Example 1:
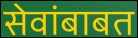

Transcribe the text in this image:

सेवांबाबत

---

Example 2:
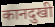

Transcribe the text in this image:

कानदुखी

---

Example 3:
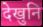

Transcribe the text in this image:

देखुनि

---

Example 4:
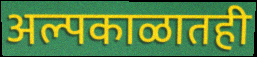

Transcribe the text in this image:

अल्पकाळातही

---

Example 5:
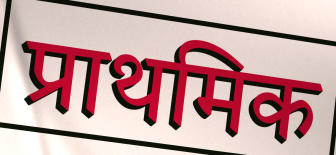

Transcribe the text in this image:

प्राथमिक